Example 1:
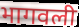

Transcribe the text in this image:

भागवली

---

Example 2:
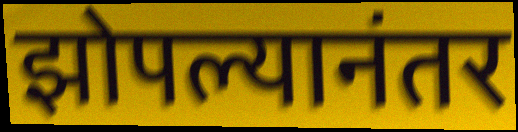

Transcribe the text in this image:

झोपल्यानंतर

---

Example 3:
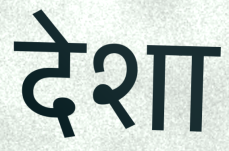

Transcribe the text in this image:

देशा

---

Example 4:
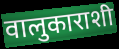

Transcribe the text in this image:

वालुकाराशी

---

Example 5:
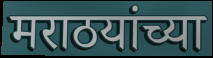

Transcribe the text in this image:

मराठयांच्या